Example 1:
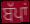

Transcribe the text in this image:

ਬੱਪਾਂ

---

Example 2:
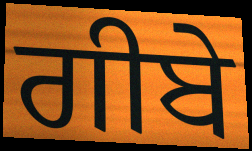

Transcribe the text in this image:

ਗੀਬੇ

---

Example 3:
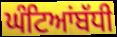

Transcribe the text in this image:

ਘੰਟਿਆਂਬੱਧੀ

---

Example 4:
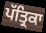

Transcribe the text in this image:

ਪੱਤ੍ਰਿਕਾ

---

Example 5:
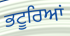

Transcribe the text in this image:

ਭਟੂਰਿਆਂ